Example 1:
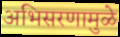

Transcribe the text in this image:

अभिसरणामुळे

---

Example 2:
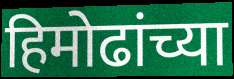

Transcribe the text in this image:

हिमोढांच्या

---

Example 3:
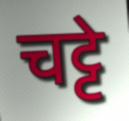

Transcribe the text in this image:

चट्टे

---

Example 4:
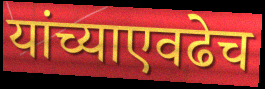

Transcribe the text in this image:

यांच्याएवढेच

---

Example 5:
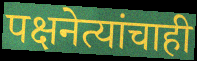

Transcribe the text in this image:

पक्षनेत्यांचाही